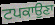
ਟਪਕਾਉਣਾ